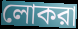
লোকরা